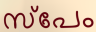
സ്പേം